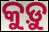
କୁଡ଼ୁ